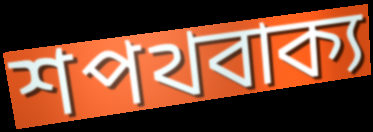
শপথবাক্য